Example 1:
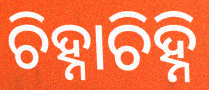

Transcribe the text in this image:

ଚିହ୍ନାଚିହ୍ନି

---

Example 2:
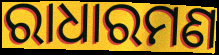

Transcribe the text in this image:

ରାଧାରମଣ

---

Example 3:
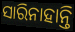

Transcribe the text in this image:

ସାରିନାହାନ୍ତି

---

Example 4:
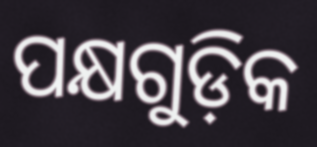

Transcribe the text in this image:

ପକ୍ଷଗୁଡ଼ିକ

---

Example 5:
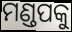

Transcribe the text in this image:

ମଣ୍ଡପକୁ